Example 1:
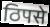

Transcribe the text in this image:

ठिपसे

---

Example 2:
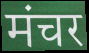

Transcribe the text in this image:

मंचर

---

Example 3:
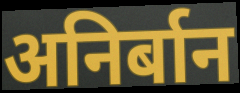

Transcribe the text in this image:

अनिर्बान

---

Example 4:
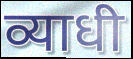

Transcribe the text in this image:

व्याधी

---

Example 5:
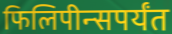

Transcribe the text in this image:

फिलिपीन्सपर्यंत